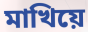
মাখিয়ে